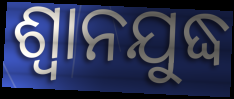
ଶ୍ଵାନଯୁଦ୍ଧ